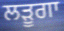
ਲੜੂਗਾ